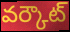
వర్కౌట్